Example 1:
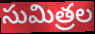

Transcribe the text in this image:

సుమిత్రల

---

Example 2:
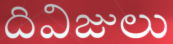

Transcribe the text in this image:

దివిజులు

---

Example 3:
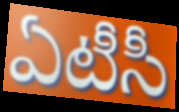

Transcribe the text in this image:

ఏటీసీ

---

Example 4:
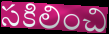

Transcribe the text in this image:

సకిలించి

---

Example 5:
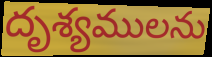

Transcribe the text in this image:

దృశ్యములను